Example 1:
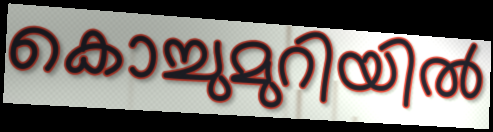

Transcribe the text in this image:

കൊച്ചുമുറിയിൽ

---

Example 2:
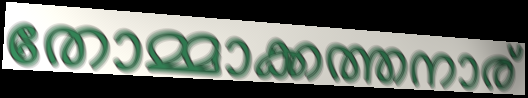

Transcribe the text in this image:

തോമ്മാക്കത്തനാര്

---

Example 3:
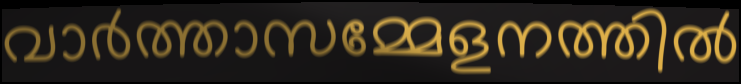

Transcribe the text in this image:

വാർത്താസമ്മേളനത്തിൽ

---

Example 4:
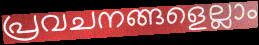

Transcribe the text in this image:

പ്രവചനങ്ങളെല്ലാം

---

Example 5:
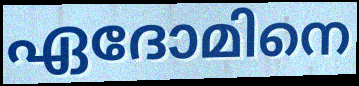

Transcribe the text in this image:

ഏദോമിനെ